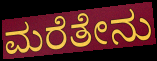
ಮರೆತೇನು